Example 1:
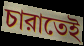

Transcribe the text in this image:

চারাতেই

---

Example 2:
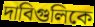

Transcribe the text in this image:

দাবিগুলিকে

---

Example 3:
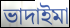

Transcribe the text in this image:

ভাদাইমা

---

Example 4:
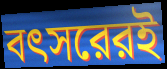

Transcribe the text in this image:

বৎসরেরই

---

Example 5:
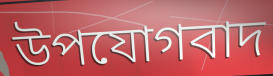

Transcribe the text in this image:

উপযোগবাদ